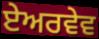
ਏਅਰਵੇਵ